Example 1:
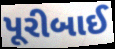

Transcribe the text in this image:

પૂરીબાઈ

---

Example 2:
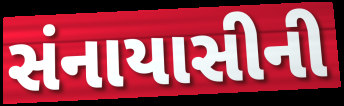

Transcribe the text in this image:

સંનાયાસીની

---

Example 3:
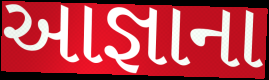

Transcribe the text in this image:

આજ્ઞાના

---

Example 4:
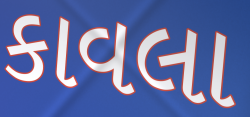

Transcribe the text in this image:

કાવલા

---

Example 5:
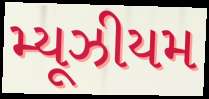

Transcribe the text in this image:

મ્યૂઝીયમ